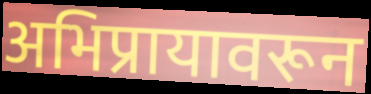
अभिप्रायावरून